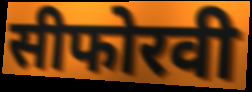
सीफोरवी